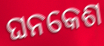
ଘନକେଶ